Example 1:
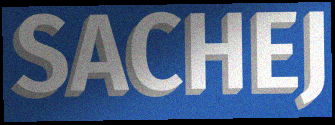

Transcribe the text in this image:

SACHEJ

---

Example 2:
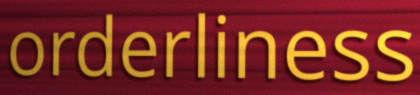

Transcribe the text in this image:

orderliness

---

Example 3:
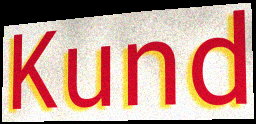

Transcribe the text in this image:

Kund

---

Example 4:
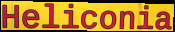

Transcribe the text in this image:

Heliconia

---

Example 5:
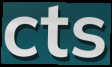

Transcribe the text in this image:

cts